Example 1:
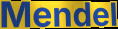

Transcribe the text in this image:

Mendel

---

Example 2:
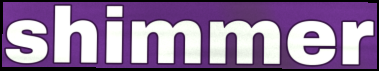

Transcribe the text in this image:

shimmer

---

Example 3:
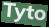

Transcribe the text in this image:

Tyto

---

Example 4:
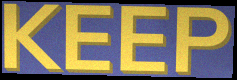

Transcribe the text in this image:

KEEP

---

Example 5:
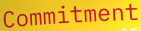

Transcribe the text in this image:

Commitment